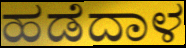
ಹಡೆದಾಳ